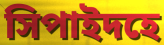
সিপাইদহে